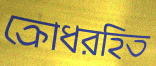
ক্রোধরহিত